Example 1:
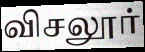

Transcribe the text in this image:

விசலூர்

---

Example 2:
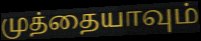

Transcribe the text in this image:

முத்தையாவும்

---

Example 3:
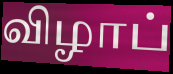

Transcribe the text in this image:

விழாப்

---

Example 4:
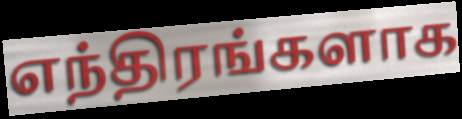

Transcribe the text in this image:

எந்திரங்களாக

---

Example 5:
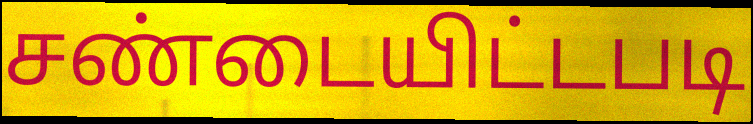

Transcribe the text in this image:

சண்டையிட்டபடி